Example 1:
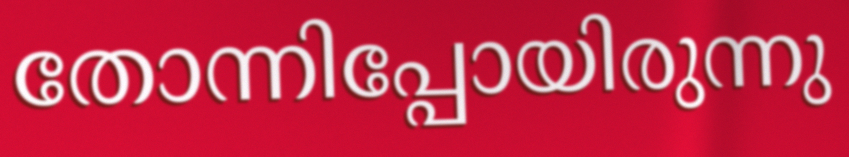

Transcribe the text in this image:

തോന്നിപ്പോയിരുന്നു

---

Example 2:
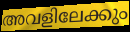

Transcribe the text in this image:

അവളിലേക്കും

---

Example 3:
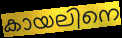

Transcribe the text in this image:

കായലിനെ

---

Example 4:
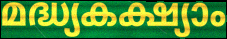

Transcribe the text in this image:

മദ്ധ്യകക്ഷ്യാം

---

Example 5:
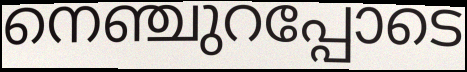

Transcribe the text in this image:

നെഞ്ചുറപ്പോടെ